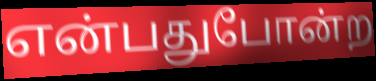
என்பதுபோன்ற